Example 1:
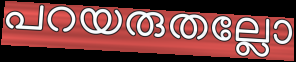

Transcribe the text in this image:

പറയരുതല്ലോ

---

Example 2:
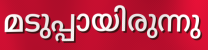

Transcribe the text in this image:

മടുപ്പായിരുന്നു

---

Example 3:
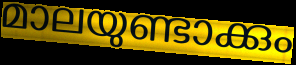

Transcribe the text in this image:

മാലയുണ്ടാക്കും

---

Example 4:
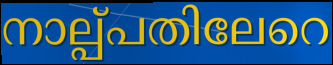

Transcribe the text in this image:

നാല്പ്പതിലേറെ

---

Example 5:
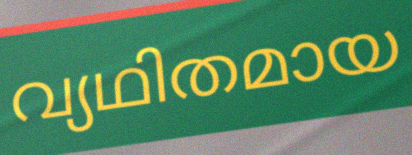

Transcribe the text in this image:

വ്യഥിതമായ